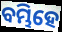
ବମ୍ଭିହେ